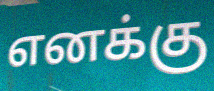
எனக்கு